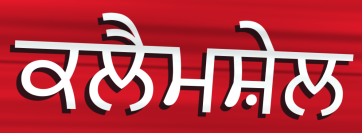
ਕਲੈਮਸ਼ੇਲ